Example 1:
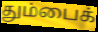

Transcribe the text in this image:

தும்பைக்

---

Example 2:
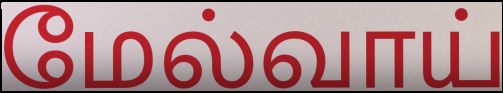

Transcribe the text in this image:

மேல்வாய்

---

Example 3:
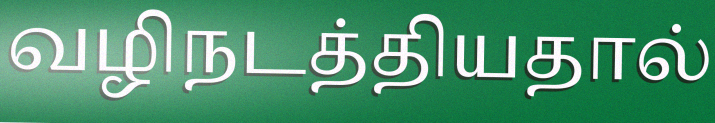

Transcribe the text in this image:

வழிநடத்தியதால்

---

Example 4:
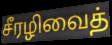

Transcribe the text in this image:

சீரழிவைத்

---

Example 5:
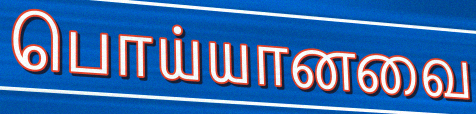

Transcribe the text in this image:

பொய்யானவை